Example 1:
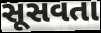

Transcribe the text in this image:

સૂસવતા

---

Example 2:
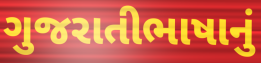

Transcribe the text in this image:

ગુજરાતીભાષાનું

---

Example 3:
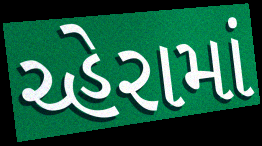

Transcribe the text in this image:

ચ્હેરામાં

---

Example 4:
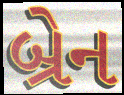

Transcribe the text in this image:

બ્રેન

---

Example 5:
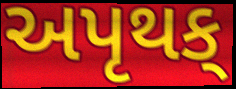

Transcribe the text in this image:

અપૃથક્